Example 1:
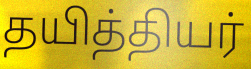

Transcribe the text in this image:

தயித்தியர்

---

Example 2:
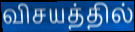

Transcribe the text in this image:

விசயத்தில்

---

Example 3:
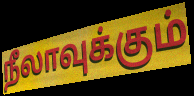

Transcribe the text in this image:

நீலாவுக்கும்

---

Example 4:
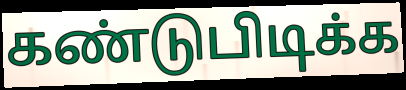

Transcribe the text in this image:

கண்டுபிடிக்க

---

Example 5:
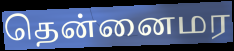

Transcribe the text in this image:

தென்னைமர